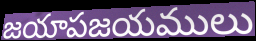
జయాపజయములు